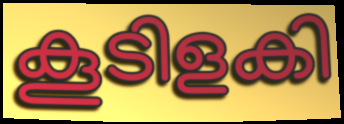
കൂടിളകി